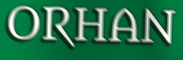
ORHAN